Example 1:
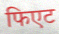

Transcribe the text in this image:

फिएट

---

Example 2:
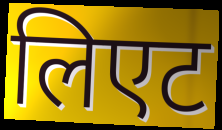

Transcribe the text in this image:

लिएट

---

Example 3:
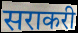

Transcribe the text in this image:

सराकरी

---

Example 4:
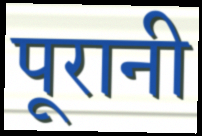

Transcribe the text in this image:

पूरानी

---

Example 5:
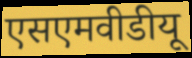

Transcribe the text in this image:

एसएमवीडीयू